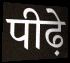
पीढ़े